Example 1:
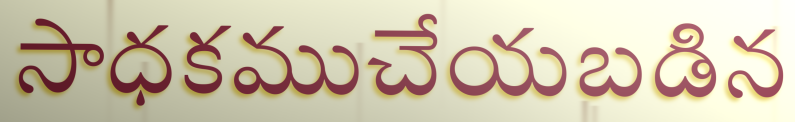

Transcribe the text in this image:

సాధకముచేయబడిన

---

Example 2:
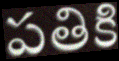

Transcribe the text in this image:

పతికి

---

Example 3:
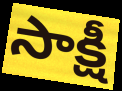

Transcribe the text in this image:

సాక్షీ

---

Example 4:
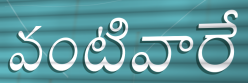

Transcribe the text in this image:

వంటివారే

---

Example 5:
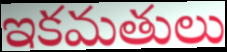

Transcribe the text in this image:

ఇకమతులు